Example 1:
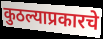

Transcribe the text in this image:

कुठल्याप्रकारचे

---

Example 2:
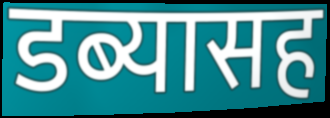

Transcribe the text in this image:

डब्यासह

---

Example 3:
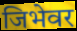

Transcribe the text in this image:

जिभेवर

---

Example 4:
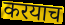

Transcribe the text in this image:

करयाच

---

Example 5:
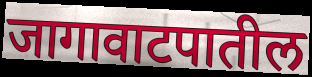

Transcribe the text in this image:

जागावाटपातील